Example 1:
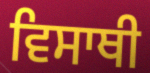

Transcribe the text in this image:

ਵਿਸਾਥੀ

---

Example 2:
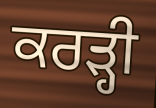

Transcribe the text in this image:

ਕਰੜ੍ਹੀ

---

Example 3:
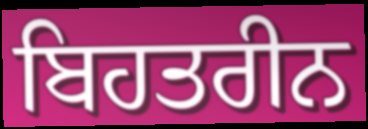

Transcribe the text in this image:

ਬਿਹਤਰੀਨ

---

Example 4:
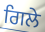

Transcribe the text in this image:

ਗਿਲੇ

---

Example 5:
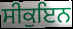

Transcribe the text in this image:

ਸੀਕੁਇਨ